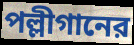
পল্লীগানের